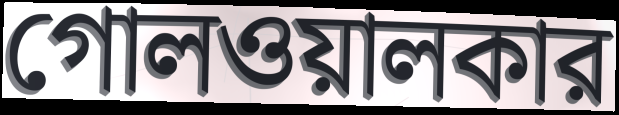
গোলওয়ালকার